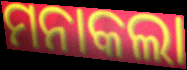
ମନାକଲା